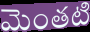
మెంతటి